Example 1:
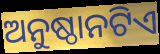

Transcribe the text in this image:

ଅନୁଷ୍ଠାନଟିଏ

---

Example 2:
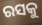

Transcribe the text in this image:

ରସକୁ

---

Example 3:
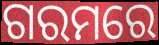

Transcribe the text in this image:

ଗରମରେ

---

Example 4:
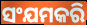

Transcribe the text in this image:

ସଂଯମକରି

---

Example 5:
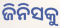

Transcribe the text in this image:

ଜିନିସକୁ